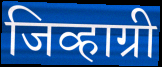
जिव्हाग्री